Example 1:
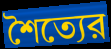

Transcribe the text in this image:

শৈত্যের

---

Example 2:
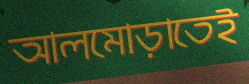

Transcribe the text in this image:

আলমোড়াতেই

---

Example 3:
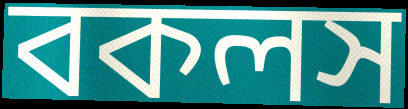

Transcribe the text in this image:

বকলস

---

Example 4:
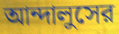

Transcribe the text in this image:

আন্দালুসের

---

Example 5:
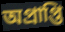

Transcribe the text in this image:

অপ্রাপ্তি